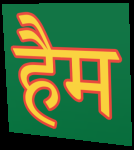
हैम